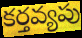
కర్తవ్యపు